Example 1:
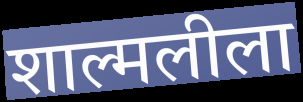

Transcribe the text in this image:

शाल्मलीला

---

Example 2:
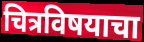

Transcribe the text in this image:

चित्रविषयाचा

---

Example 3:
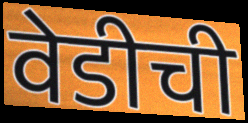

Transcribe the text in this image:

वेडीची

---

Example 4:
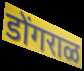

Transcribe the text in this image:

डोंगराळ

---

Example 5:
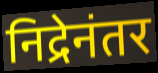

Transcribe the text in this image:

निद्रेनंतर